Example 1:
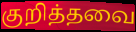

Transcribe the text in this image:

குறித்தவை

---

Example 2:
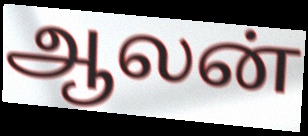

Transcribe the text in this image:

ஆலன்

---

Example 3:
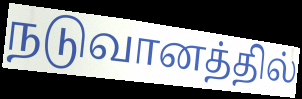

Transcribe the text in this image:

நடுவானத்தில்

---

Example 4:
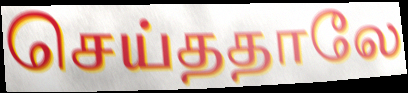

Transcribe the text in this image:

செய்ததாலே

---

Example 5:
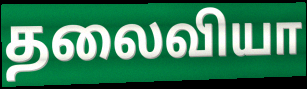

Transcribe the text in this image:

தலைவியா